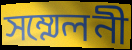
সম্মেলনী